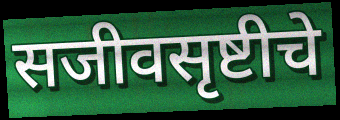
सजीवसृष्टीचे